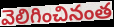
వెలిగించినంత